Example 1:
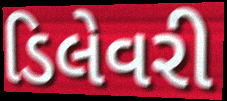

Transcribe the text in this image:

ડિલેવરી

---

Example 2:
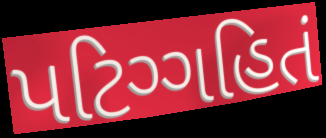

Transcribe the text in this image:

પટિગ્ગહિતં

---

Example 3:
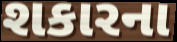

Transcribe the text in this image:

શકારના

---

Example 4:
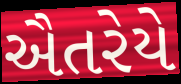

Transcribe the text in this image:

ઐતરેયે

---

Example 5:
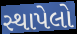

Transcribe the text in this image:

સ્થાપેલો